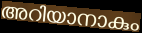
അറിയാനാകും